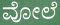
ವೋಲೆ